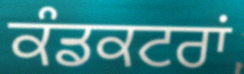
ਕੰਡਕਟਰਾਂ